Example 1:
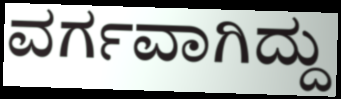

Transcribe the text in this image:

ವರ್ಗವಾಗಿದ್ದು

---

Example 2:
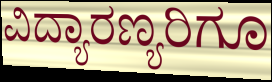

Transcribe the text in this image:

ವಿದ್ಯಾರಣ್ಯರಿಗೂ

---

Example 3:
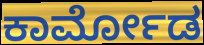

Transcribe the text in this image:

ಕಾರ್ಮೋಡ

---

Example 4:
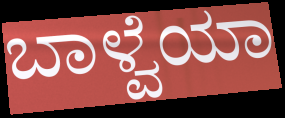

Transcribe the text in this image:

ಬಾಳ್ವೆಯಾ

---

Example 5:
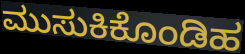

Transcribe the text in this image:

ಮುಸುಕಿಕೊಂಡಿಹ